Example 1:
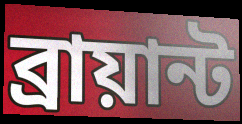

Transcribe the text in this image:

ব্রায়ান্ট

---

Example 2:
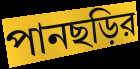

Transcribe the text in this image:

পানছড়ির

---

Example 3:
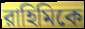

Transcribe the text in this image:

রাহিমিকে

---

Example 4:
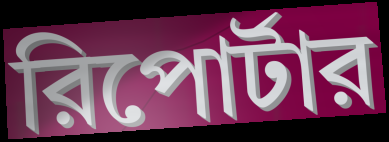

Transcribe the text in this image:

রিপোর্টার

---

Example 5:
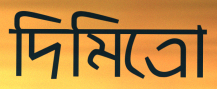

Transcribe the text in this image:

দিমিত্রো